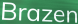
Brazen